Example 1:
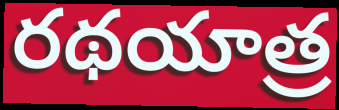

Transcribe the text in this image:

రథయాత్ర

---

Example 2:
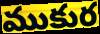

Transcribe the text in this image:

ముకుర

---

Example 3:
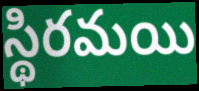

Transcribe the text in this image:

స్థిరమయి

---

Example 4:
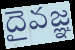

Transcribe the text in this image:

దైవజ్ఞ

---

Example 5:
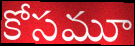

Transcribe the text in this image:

కోసమూ